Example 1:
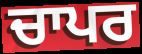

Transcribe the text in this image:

ਚਾਪਰ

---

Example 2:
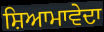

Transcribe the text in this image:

ਸ਼ਿਆਮਾਵੇਦਾ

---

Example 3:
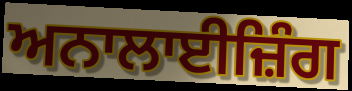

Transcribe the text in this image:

ਅਨਾਲਾਈਜ਼ਿੰਗ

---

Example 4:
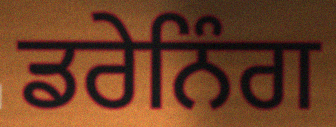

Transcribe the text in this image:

ਡਰੇਨਿੰਗ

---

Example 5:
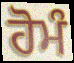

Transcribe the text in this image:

ਹੋਮੰ